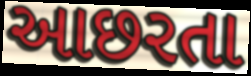
આછરતા